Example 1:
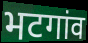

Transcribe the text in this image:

भटगांव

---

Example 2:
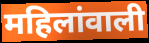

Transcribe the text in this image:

महिलांवाली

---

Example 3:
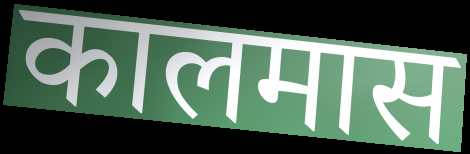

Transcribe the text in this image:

कालमास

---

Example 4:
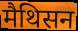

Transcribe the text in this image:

मैथिसन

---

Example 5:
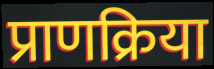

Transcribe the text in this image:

प्राणक्रिया